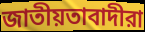
জাতীয়তাবাদীরা